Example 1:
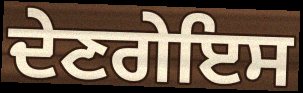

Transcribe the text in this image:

ਦੇਣਗੇਇਸ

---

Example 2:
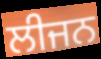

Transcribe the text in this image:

ਲੀਜਨ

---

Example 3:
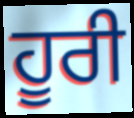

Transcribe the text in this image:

ਹੂਰੀ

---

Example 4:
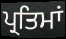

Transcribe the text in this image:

ਪ੍ਰਤਿਮਾਂ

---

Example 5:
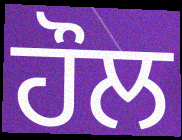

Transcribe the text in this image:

ਹੌਲ